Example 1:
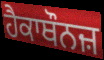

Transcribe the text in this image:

ਹੈਕਾਥੌਨਜ਼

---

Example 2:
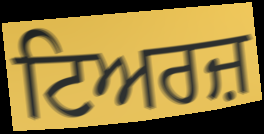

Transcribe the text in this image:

ਟਿਅਰਜ਼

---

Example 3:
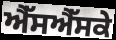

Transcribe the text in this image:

ਐੱਸਐੱਸਕੇ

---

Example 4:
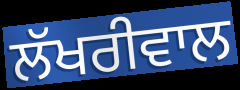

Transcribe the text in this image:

ਲੱਖਰੀਵਾਲ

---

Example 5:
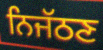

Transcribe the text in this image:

ਨਿਜੱਠਣ